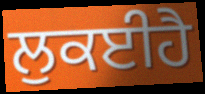
ਲੁਕਈਹੈ